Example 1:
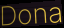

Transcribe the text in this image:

Dona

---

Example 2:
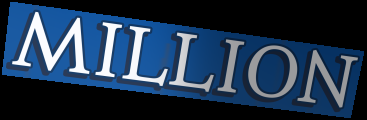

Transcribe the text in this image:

MILLION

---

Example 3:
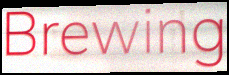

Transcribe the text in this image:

Brewing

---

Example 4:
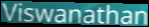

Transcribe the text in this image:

Viswanathan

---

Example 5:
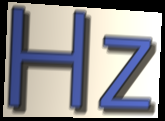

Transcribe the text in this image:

Hz